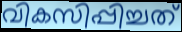
വികസിപ്പിച്ചത്